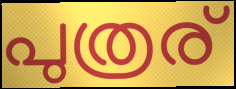
പുത്രര്